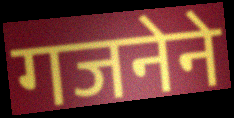
गजनेने